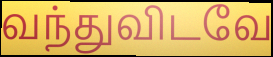
வந்துவிடவே